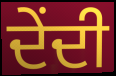
ਦੇਂਦੀ